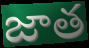
జాత